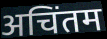
अचिंतम